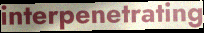
interpenetrating